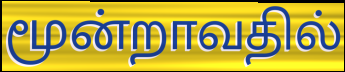
மூன்றாவதில்